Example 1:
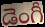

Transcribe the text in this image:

డెంగీ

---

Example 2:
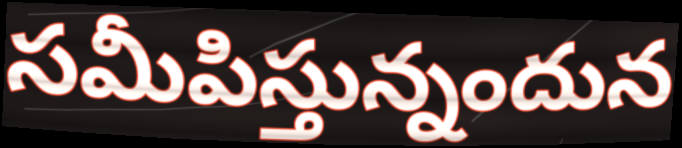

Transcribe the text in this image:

సమీపిస్తున్నందున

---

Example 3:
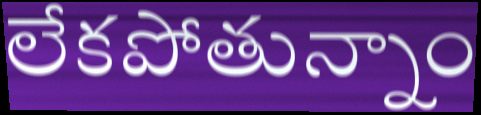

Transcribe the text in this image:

లేకపోతున్నాం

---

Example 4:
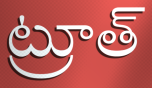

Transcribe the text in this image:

ట్రూత్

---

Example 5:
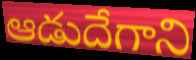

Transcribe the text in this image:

ఆడుదేగాని